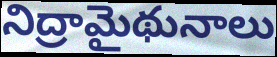
నిద్రామైథునాలు